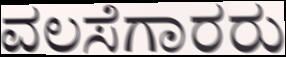
ವಲಸೆಗಾರರು